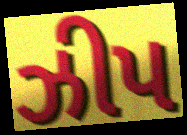
ઝીપ